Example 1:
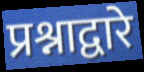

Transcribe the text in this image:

प्रश्नाद्वारे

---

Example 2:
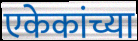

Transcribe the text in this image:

एकेकांच्या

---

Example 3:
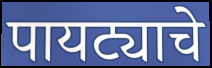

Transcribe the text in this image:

पायट्याचे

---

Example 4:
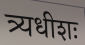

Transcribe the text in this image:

त्र्यधीशः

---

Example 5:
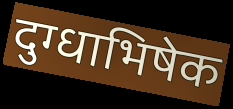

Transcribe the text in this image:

दुग्धाभिषेक